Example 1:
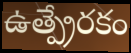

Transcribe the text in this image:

ఉత్ప్రేరకం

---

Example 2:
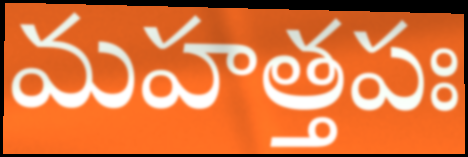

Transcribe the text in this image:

మహత్తపః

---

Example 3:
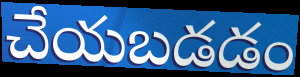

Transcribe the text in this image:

చేయబడడం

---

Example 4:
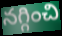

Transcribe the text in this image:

నగ్గించి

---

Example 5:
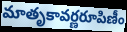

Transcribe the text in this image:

మాతృకావర్ణరూపిణీం